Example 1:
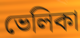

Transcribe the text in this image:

ভেলিকা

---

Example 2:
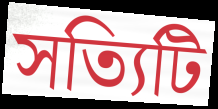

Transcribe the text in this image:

সত্যিটি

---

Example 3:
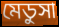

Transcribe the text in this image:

মেডুসা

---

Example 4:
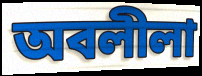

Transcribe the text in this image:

অবলীলা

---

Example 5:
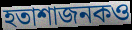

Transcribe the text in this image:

হতাশাজনকও